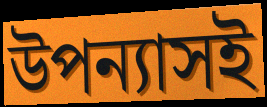
উপন্যাসই